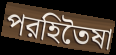
পরহিতৈষা